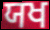
ਯਖ